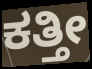
ಕತ್ತೀ